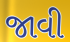
જાવી